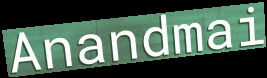
Anandmai